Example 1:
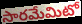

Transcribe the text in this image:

సారమేమిటో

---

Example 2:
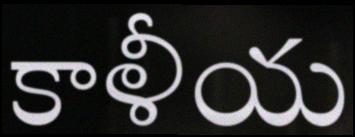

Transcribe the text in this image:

కాళీయ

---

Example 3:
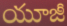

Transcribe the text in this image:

యూజీ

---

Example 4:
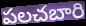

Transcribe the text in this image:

పలచబారి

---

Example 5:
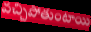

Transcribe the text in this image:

వచ్చిపోతుంటాయి